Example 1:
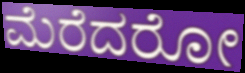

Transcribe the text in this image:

ಮೆರೆದರೋ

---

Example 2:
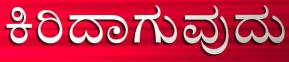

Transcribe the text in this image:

ಕಿರಿದಾಗುವುದು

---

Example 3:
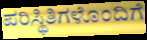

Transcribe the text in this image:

ಪರಿಸ್ಥಿತಿಗಳೊಂದಿಗೆ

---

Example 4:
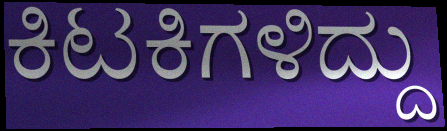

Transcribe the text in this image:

ಕಿಟಕಿಗಳಿದ್ದು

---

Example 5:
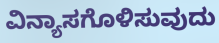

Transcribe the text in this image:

ವಿನ್ಯಾಸಗೊಳಿಸುವುದು